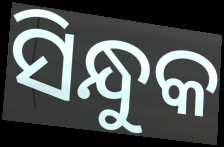
ସିନ୍ଧୁକ